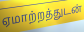
ஏமாற்றத்துடன்